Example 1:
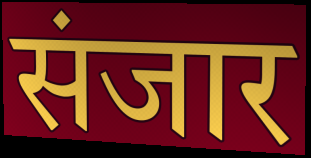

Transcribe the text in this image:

संजार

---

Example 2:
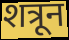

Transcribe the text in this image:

शत्रून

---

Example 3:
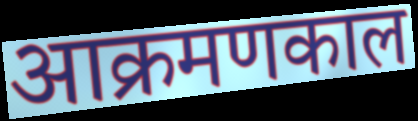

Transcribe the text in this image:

आक्रमणकाल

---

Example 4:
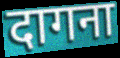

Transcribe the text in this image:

दागना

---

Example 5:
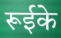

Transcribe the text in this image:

रूईके